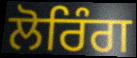
ਲੋਰਿੰਗ